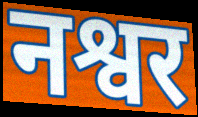
नश्वर